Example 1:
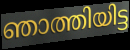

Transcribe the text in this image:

ഞാത്തിയിട്ട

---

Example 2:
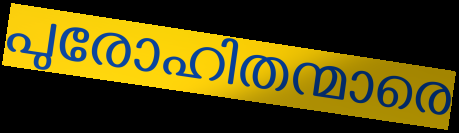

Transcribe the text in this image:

പുരോഹിതന്മാരെ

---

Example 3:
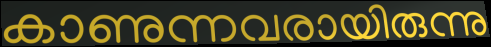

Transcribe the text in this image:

കാണുന്നവരായിരുന്നു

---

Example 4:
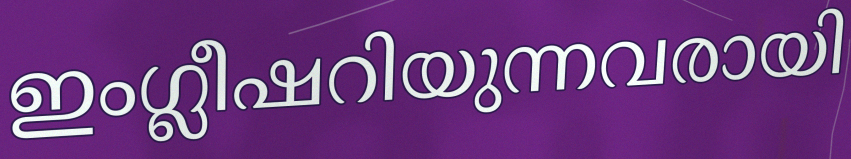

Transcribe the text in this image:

ഇംഗ്ലീഷറിയുന്നവരായി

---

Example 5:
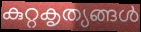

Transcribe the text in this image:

കുറ്റകൃത്യങ്ങൾ